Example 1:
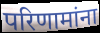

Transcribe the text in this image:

परिणामांना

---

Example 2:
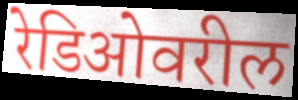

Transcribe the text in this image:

रेडिओवरील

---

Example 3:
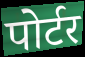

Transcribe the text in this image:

पोर्टर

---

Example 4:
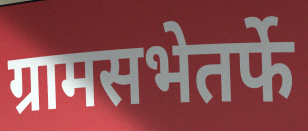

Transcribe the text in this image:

ग्रामसभेतर्फे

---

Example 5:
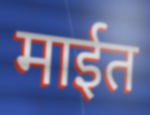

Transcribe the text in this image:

माईत